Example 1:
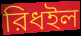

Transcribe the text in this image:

রিধইল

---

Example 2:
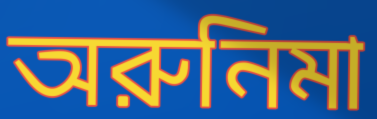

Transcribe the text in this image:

অরুনিমা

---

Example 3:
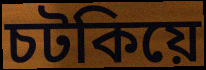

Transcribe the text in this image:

চটকিয়ে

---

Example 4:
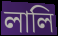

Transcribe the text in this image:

লালি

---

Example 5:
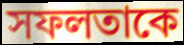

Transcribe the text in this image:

সফলতাকে